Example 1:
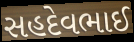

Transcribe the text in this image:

સહદેવભાઈ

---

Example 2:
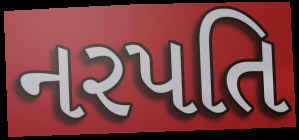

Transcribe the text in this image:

નરપતિ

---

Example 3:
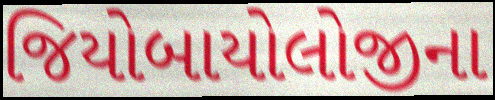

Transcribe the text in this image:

જિયોબાયોલોજીના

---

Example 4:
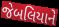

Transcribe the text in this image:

જેબલિયાને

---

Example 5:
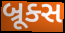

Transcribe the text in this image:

બ્રૂક્સ